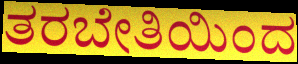
ತರಬೇತಿಯಿಂದ